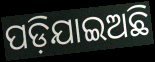
ପଡ଼ିଯାଇଅଛି